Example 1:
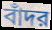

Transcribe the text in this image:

বাঁদর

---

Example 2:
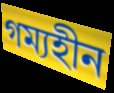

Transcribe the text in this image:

গম্যহীন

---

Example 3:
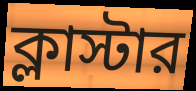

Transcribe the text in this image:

ক্লাস্টার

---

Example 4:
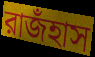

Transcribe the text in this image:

রাজঁহাস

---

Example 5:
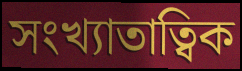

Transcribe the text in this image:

সংখ্যাতাত্বিক